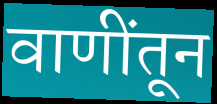
वाणींतून